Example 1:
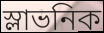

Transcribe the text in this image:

স্লাভনিক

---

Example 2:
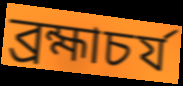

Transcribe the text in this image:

ব্ৰহ্মাচৰ্য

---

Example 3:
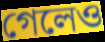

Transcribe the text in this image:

গেলেও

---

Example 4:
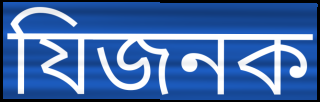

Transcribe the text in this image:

যিজনক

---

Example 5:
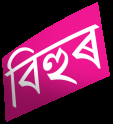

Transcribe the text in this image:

বিহুৰ